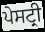
ਪੇਸਟ੍ਰੀ